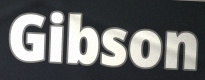
Gibson